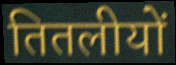
तितलीयों